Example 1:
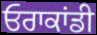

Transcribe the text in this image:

ਓਰਾਕਾਂਡੀ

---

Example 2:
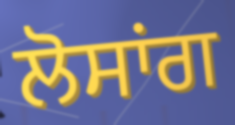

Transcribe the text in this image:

ਲੋਸਾਂਗ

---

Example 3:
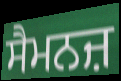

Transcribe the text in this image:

ਸੈਮਨਜ਼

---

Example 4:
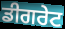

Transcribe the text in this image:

ਡੀਗਰੇਟ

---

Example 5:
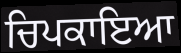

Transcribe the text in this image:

ਚਿਪਕਾਇਆ